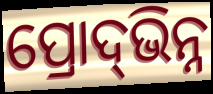
ପ୍ରୋଦ୍‌ଭିନ୍ନ